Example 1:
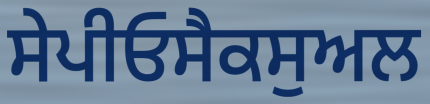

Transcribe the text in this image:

ਸੇਪੀਓਸੈਕਸੁਅਲ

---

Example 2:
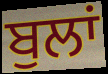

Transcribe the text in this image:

ਬੁਲਾਂ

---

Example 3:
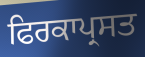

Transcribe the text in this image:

ਫਿਰਕਾਪ੍ਰਸਤ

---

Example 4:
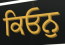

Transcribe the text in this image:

ਕਿਓਨੁ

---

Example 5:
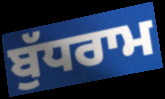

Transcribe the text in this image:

ਬੁੱਧਰਾਮ